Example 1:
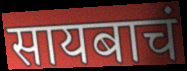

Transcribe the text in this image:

सायबाचं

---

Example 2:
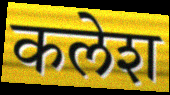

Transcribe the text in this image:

कलेश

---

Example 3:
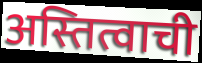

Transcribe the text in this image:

अस्तित्वाची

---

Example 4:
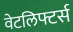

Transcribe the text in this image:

वेटलिफ्टर्स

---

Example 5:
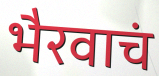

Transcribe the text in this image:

भैरवाचं